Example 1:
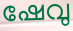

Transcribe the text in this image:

ഷേവു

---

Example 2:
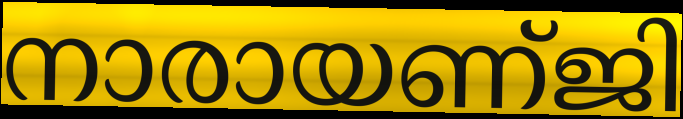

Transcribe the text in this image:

നാരായണ്ജി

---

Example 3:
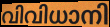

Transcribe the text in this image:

വിവിധാനി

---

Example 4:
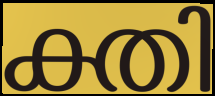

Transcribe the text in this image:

ക്തി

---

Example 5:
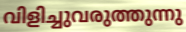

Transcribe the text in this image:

വിളിച്ചുവരുത്തുന്നു